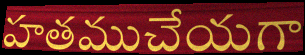
హతముచేయగా